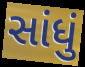
સાંધું